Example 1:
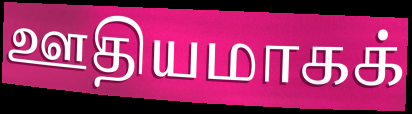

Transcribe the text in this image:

ஊதியமாகக்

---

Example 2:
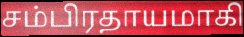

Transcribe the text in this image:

சம்பிரதாயமாகி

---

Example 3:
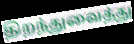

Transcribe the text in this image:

திறந்துவைத்து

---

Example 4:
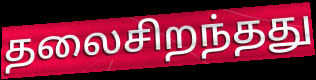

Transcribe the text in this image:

தலைசிறந்தது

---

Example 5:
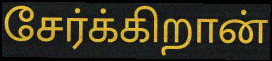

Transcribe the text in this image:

சேர்க்கிறான்